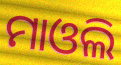
ମାଓଲି